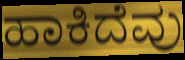
ಹಾಕಿದೆವು